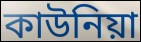
কাউনিয়া